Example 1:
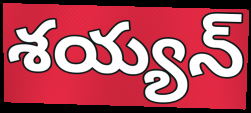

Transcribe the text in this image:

శయ్యన్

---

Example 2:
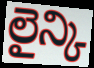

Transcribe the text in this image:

లైన్కి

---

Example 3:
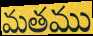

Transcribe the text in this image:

మతము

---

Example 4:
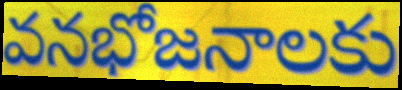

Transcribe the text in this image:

వనభోజనాలకు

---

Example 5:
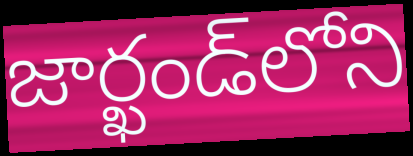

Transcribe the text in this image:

జార్ఖండ్‌లోని